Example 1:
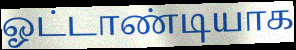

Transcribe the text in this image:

ஓட்டாண்டியாக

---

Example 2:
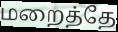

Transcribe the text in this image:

மறைத்தே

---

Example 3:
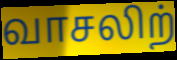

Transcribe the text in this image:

வாசலிற்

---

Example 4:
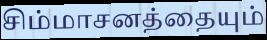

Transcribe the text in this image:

சிம்மாசனத்தையும்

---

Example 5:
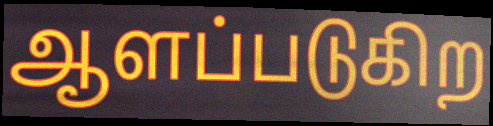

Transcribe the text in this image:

ஆளப்படுகிற